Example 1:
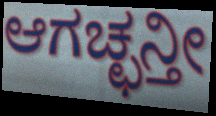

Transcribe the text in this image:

ಆಗಚ್ಛನ್ತೀ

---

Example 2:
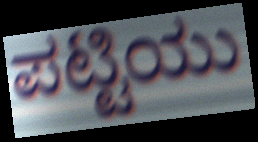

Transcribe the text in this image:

ಪಟ್ಟಿಯು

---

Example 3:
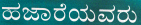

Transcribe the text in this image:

ಹಜಾರೆಯವರು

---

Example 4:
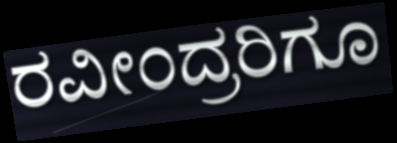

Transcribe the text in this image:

ರವೀಂದ್ರರಿಗೂ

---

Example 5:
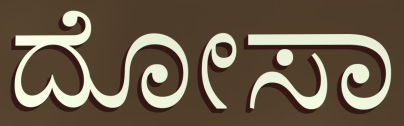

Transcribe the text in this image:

ದೋಸಾ